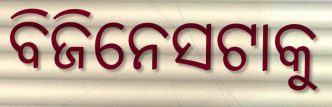
ବିଜିନେସଟାକୁ